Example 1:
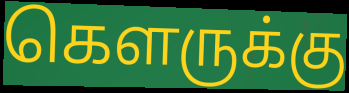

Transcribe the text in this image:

கௌருக்கு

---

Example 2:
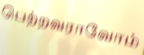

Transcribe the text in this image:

பெற்றவராவோம்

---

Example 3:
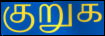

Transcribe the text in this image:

குறுக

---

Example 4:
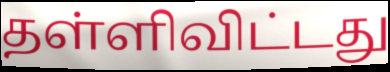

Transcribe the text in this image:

தள்ளிவிட்டது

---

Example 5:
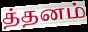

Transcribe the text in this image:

த்தனம்